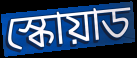
স্কোয়াড